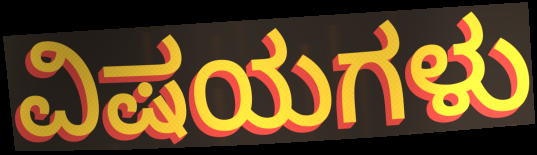
ವಿಷಯಗಳು